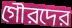
গৌরদের